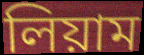
লিয়াম